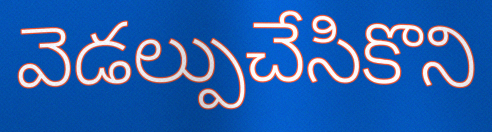
వెడల్పుచేసికొని